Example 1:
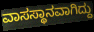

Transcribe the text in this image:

ವಾಸಸ್ಥಾನವಾಗಿದ್ದು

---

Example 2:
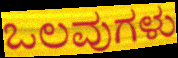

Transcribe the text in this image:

ಒಲವುಗಳು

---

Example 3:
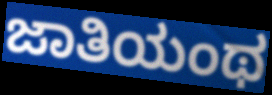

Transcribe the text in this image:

ಜಾತಿಯಂಥ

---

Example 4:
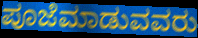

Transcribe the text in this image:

ಪೂಜೆಮಾಡುವವರು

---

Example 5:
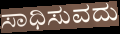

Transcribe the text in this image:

ಸಾಧಿಸುವದು